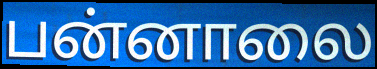
பன்னாலை